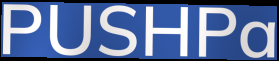
PUSHPa